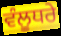
ਵੰਲੂਧਰੇ